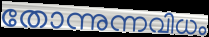
തോന്നുന്നവിധം